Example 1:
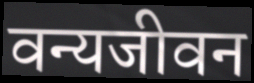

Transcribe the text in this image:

वन्यजीवन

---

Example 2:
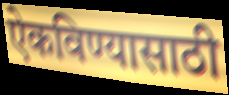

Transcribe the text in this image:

ऐकविण्यासाठी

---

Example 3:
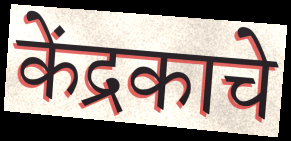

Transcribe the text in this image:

केंद्रकाचे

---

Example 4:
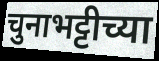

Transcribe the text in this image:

चुनाभट्टीच्या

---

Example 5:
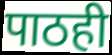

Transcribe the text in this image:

पाठही